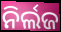
ନିର୍ଲଜ